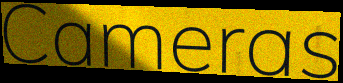
Cameras